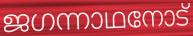
ജഗന്നാഥനോട്